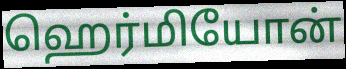
ஹெர்மியோன்